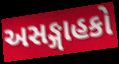
અસઙ્ગાહકો